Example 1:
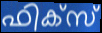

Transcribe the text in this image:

ഫിക്സ്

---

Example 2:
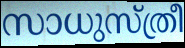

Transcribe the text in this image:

സാധുസ്ത്രീ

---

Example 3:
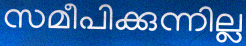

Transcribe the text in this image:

സമീപിക്കുന്നില്ല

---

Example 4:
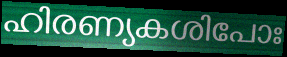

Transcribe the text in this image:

ഹിരണ്യകശിപോഃ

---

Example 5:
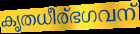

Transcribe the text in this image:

കൃതധീര്ഭഗവന്